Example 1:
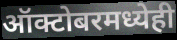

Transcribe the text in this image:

ऑक्टोबरमध्येही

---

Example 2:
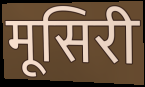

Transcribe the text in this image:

मूसिरी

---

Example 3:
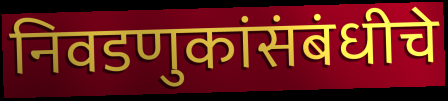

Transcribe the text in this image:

निवडणुकांसंबंधीचे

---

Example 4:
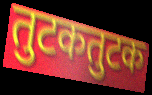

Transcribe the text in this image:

तुटकतुटक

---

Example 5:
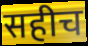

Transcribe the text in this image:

सहीच